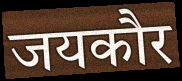
जयकौर